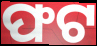
ଫଟ